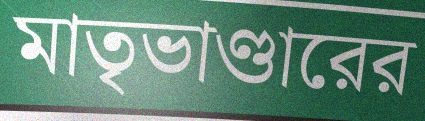
মাতৃভাণ্ডারের